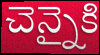
చెన్నైకి